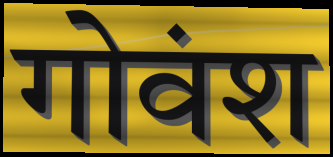
गोवंश